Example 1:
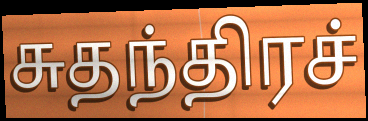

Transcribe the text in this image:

சுதந்திரச்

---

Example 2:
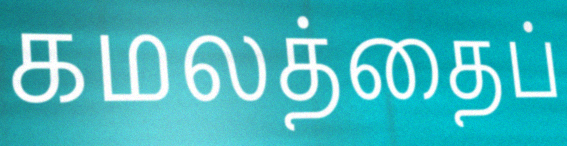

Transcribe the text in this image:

கமலத்தைப்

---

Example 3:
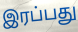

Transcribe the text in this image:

இரப்பது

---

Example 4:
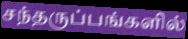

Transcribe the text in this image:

சந்தருப்பங்களில்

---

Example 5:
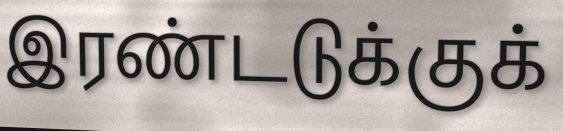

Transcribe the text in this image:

இரண்டடுக்குக்